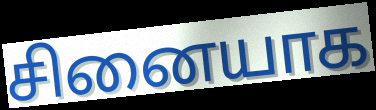
சினையாக